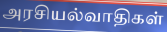
அரசியல்வாதிகள்